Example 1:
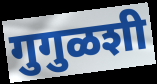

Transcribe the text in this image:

गुगुळशी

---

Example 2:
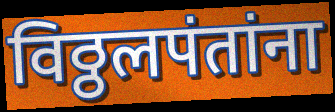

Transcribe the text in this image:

विठ्ठलपंतांना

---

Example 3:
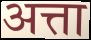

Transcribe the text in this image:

अत्ता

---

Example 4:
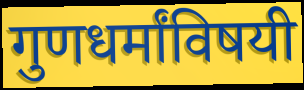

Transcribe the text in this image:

गुणधर्मांविषयी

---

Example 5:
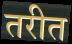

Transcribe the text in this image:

तरीत